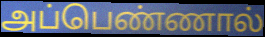
அப்பெண்ணால்